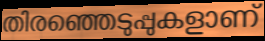
തിരഞ്ഞെടുപ്പുകളാണ്